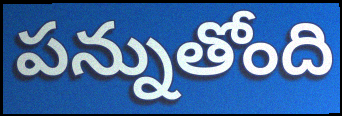
పన్నుతోంది